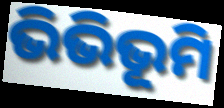
ଭିଭିଭୂମି